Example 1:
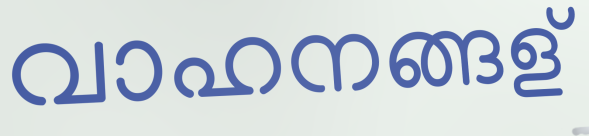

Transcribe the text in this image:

വാഹനങ്ങള്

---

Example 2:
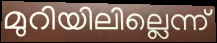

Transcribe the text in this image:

മുറിയിലില്ലെന്ന്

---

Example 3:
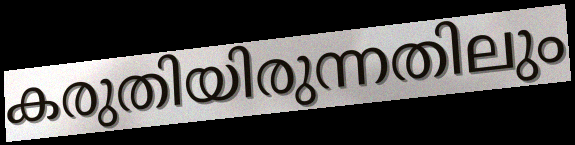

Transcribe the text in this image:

കരുതിയിരുന്നതിലും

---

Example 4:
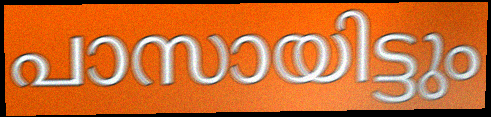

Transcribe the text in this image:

പാസായിട്ടും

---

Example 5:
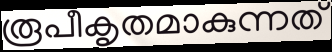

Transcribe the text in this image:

രൂപീകൃതമാകുന്നത്